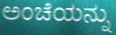
ಅಂಚೆಯನ್ನು